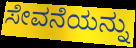
ಸೇವನೆಯನ್ನು